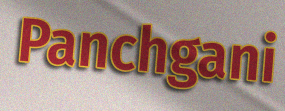
Panchgani